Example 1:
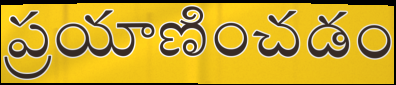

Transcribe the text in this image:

ప్రయాణించడం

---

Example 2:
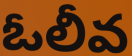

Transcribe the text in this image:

ఓలీవ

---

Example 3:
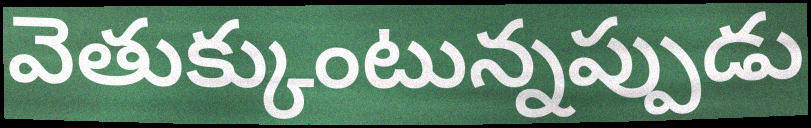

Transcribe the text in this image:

వెతుక్కుంటున్నప్పుడు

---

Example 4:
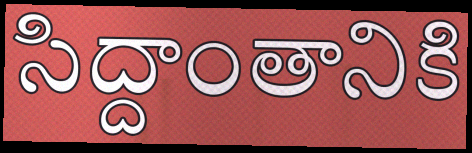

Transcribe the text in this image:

సిద్దాంతానికి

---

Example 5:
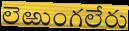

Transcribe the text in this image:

లెఱుంగలేరు